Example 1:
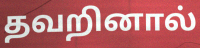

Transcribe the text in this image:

தவறினால்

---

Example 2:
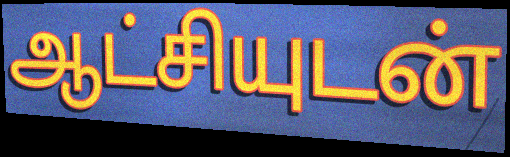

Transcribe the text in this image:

ஆட்சியுடன்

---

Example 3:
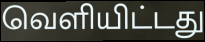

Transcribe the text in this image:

வெளியிட்டது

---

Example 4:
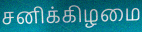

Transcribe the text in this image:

சனிக்கிழமை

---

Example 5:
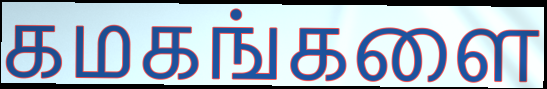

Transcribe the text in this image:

கமகங்களை